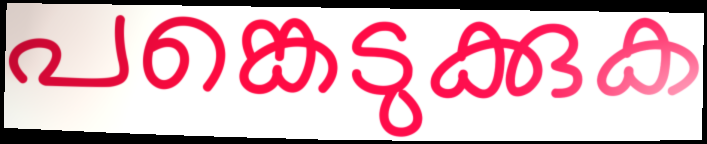
പങ്കെടുക്കുക